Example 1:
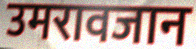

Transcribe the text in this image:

उमरावजान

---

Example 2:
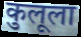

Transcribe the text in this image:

कुलूला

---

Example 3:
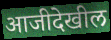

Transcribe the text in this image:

आजीदेखील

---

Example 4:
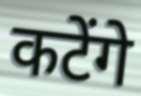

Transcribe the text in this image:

कटेंगे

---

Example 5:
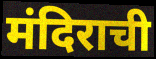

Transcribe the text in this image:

मंदिराची